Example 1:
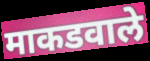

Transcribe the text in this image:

माकडवाले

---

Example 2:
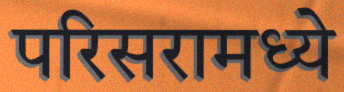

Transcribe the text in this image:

परिसरामध्ये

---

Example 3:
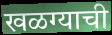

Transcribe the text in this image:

खळग्याची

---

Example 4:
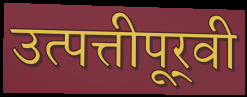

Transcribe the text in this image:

उत्पत्तीपूर्वी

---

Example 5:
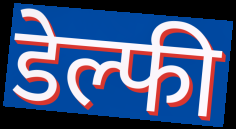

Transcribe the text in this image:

डेल्फी